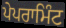
ਪੇਪਰਾਮਿੰਟ